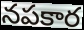
నపకార